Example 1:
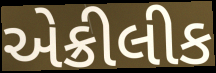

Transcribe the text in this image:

એક્રીલીક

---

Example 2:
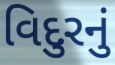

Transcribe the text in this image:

વિદુરનું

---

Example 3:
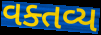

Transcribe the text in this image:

વક્તવ્ય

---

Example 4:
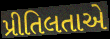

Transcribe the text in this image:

પ્રીતિલતાએ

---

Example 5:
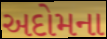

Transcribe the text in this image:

અદોમના